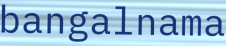
bangalnama